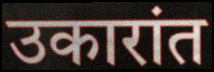
उकारांत